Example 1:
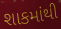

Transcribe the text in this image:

શાકમાંથી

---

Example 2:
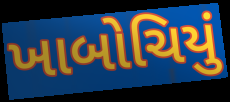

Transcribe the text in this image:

ખાબોચિયું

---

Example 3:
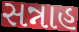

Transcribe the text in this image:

સન્નાહ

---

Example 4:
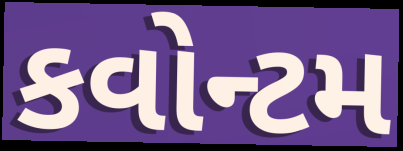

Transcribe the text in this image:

કવોન્ટમ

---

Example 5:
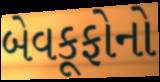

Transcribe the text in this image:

બેવકૂફોનો